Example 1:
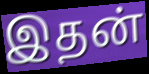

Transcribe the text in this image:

இதன்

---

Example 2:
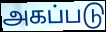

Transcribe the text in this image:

அகப்படு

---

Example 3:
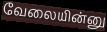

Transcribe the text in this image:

வேலையின்னு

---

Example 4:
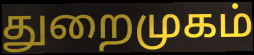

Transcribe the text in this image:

துறைமுகம்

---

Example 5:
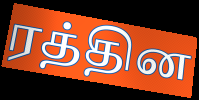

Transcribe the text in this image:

ரத்தின